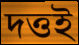
দত্তই